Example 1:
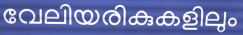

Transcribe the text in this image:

വേലിയരികുകളിലും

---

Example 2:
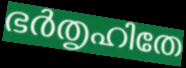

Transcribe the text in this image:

ഭർതൃഹിതേ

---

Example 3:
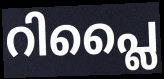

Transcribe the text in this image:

റിപ്ലൈ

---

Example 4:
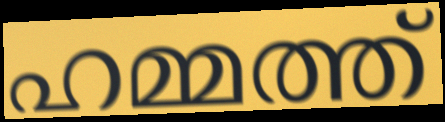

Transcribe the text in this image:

ഹമ്മത്ത്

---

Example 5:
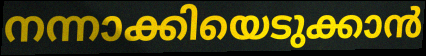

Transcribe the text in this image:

നന്നാക്കിയെടുക്കാൻ